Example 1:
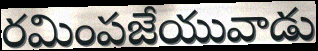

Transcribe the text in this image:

రమింపజేయువాడు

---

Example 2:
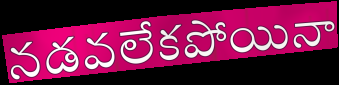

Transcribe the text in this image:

నడవలేకపోయినా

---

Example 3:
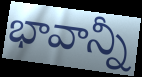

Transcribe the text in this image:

భావాన్నీ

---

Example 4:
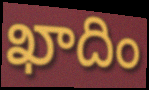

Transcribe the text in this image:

ఖాదిం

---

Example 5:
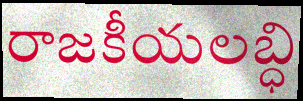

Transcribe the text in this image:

రాజకీయలబ్ధి